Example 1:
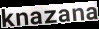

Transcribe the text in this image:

knazana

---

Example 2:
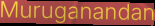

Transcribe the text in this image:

Muruganandan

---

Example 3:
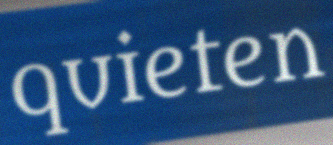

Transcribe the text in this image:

quieten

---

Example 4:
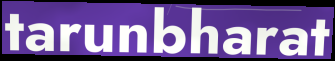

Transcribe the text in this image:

tarunbharat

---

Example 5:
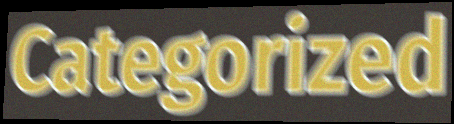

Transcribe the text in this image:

Categorized